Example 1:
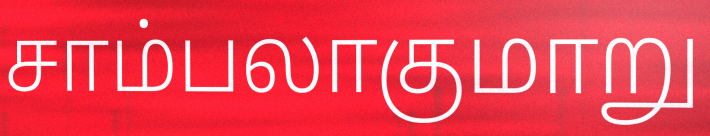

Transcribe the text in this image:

சாம்பலாகுமாறு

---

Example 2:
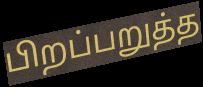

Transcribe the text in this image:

பிறப்பறுத்த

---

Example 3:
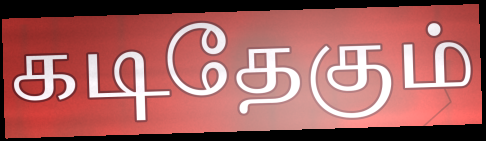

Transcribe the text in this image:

கடிதேகும்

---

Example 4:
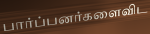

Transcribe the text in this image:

பார்ப்பனர்களைவிட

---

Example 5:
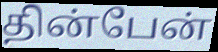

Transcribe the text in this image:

தின்பேன்